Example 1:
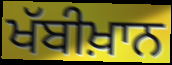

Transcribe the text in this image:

ਖੱਬੀਖ਼ਾਨ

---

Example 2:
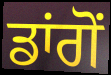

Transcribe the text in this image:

ਡਾਂਗੋਂ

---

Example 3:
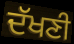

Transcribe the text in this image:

ਦੱਖਣੀ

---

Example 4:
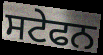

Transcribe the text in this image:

ਸਟੇਫਨ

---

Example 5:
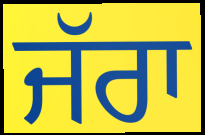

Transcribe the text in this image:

ਜੱਰਾ